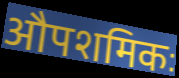
औपशमिकः